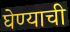
घेण्याची